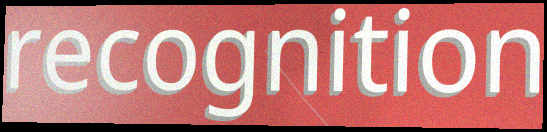
recognition